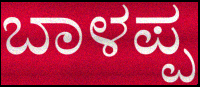
ಬಾಳಪ್ಪ